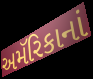
અમૅરિકાનાં